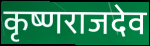
कृष्णराजदेव